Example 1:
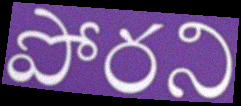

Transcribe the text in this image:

పోరని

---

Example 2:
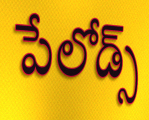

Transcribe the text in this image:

పేలోడ్స్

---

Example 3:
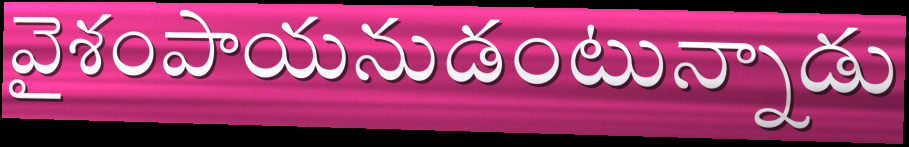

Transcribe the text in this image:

వైశంపాయనుడంటున్నాడు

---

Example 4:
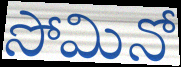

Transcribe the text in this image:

సోమినో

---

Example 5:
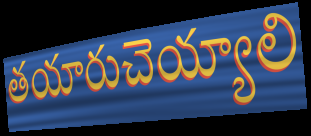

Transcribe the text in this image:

తయారుచెయ్యాలి